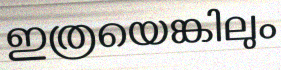
ഇത്രയെങ്കിലും